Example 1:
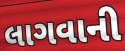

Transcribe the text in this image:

લાગવાની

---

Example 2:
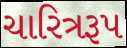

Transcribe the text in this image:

ચારિત્રરૂપ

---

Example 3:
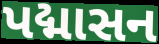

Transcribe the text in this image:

પદ્માસન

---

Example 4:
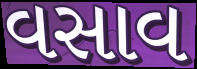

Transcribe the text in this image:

વસાવ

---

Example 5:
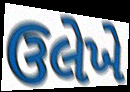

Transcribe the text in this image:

ઉલેખે